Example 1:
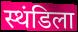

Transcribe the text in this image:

स्थंडिला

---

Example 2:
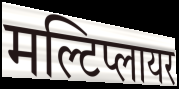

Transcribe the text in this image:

मल्टिप्लायर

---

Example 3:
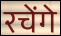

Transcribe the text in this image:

रचेंगे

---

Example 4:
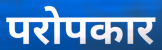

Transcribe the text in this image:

परोपकार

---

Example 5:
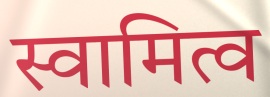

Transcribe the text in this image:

स्वामित्व